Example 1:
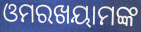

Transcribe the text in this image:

ଓମରଖୟାମଙ୍କ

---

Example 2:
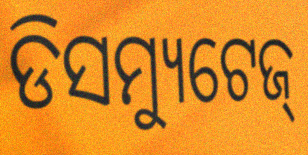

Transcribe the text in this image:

ଡିସମ୍ୟୁଟେଜ୍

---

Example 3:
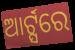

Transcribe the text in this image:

ଆର୍ଟ୍ସରେ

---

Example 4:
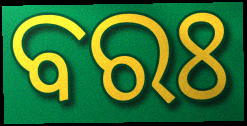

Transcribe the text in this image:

ବରଃ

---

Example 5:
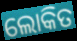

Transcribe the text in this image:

ଲୋକିତ